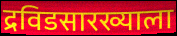
द्रविडसारख्याला